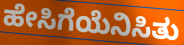
ಹೇಸಿಗೆಯೆನಿಸಿತು